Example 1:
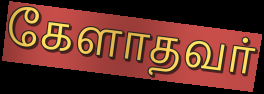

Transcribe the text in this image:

கேளாதவர்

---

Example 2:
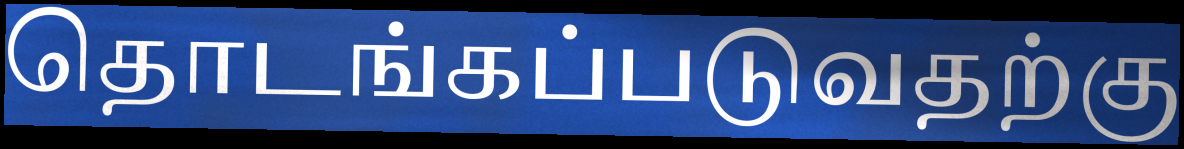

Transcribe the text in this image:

தொடங்கப்படுவதற்கு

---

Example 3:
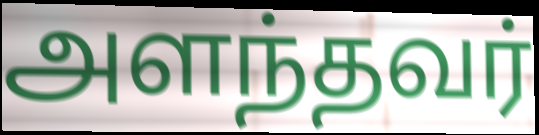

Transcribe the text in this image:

அளந்தவர்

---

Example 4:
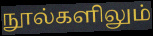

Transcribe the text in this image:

நூல்களிலும்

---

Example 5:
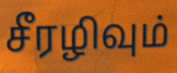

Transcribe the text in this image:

சீரழிவும்